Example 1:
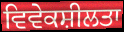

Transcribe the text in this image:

ਵਿਵੇਕਸ਼ੀਲਤਾ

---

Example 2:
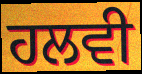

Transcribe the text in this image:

ਹਲਵੀ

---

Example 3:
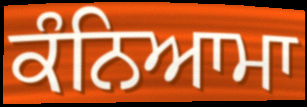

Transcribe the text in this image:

ਕੰਨਿਆਮਾ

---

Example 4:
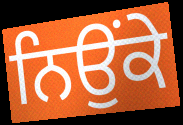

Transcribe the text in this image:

ਨਿਉਂਕੇ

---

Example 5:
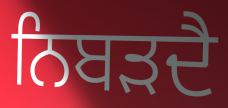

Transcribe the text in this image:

ਨਿਬੜਦੈ